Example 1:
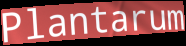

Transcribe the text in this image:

Plantarum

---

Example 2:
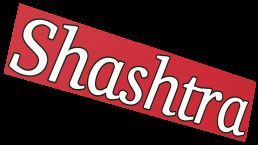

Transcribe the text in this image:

Shashtra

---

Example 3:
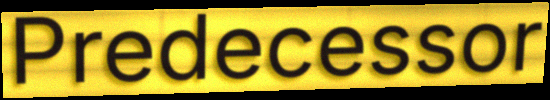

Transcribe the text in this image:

Predecessor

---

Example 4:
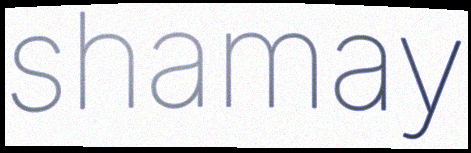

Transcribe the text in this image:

shamay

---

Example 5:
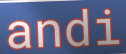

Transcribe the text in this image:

andi